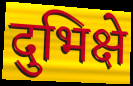
दुभिक्षे